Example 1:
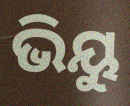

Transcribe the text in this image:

ଭିୟୁ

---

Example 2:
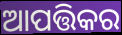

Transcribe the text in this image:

ଆପତ୍ତିକର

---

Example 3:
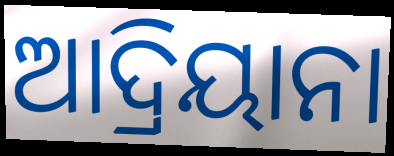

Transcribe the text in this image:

ଆଦ୍ରିୟାନା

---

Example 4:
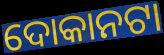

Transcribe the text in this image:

ଦୋକାନଟା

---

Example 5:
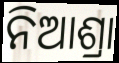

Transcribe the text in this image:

ନିଆଶ୍ରା